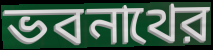
ভবনাথের